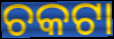
ଚକଟା